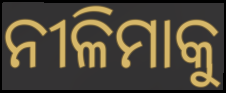
ନୀଳିମାକୁ